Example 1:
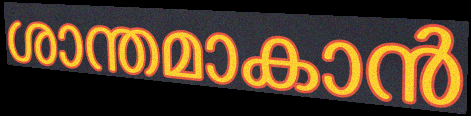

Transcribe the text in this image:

ശാന്തമാകാൻ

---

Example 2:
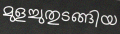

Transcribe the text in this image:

മുളച്ചുതുടങ്ങിയ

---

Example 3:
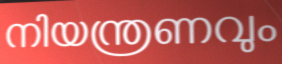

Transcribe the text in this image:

നിയന്ത്രണവും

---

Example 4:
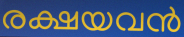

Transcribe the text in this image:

രക്ഷയവൻ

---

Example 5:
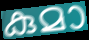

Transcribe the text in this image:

കുമാ